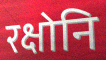
रक्षोनि